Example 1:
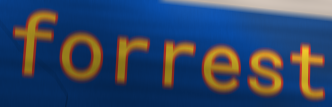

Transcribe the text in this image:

forrest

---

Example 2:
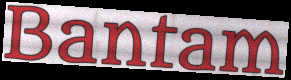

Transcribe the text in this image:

Bantam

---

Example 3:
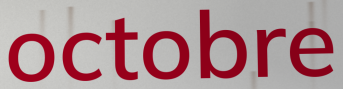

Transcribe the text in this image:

octobre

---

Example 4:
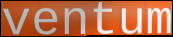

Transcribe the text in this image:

ventum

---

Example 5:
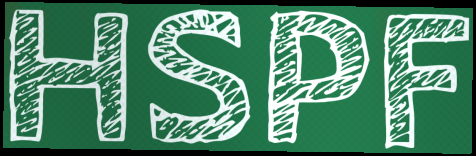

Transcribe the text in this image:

HSPF